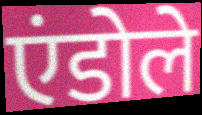
एंडोले